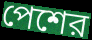
পেশের